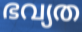
ഭവ്യത